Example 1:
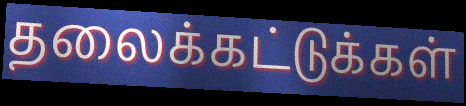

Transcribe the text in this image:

தலைக்கட்டுக்கள்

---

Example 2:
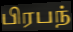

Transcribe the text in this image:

பிரபந்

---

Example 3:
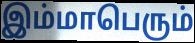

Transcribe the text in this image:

இம்மாபெரும்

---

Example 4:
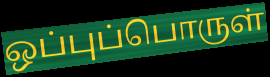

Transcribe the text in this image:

ஒப்புப்பொருள்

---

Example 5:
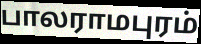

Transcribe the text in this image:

பாலராமபுரம்